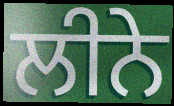
ਲੀਨੇ